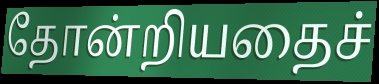
தோன்றியதைச்